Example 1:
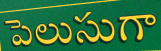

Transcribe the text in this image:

పెలుసుగా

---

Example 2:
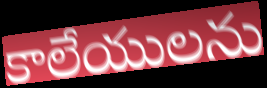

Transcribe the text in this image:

కాలేయులను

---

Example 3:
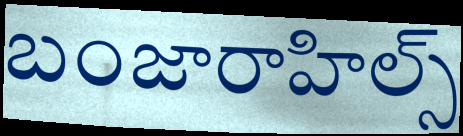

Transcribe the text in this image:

బంజారాహిల్స్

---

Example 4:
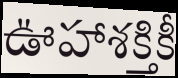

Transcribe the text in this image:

ఊహాశక్తికీ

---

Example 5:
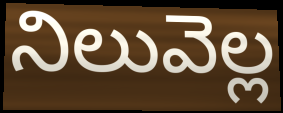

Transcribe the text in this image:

నిలువెల్ల